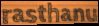
rasthanu